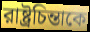
রাষ্ট্রচিন্তাকে